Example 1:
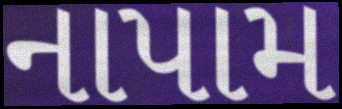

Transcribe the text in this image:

નાપામ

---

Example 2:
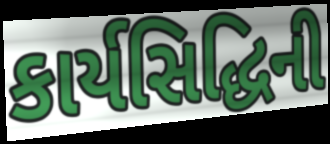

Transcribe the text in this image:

કાર્યસિદ્ધિની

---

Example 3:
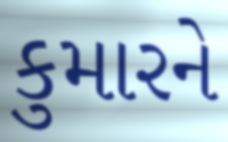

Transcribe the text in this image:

કુમારને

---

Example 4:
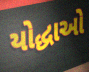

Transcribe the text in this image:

યોદ્ધાઓ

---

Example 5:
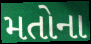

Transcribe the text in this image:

મતોના